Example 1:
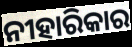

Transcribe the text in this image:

ନୀହାରିକାର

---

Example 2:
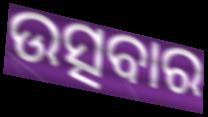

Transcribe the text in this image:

ଉତ୍ସବାର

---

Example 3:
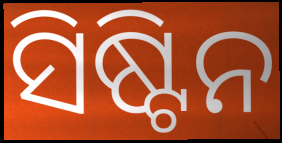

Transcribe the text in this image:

ସିଷ୍ଟିନ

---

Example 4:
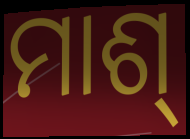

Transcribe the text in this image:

ମାଶ୍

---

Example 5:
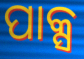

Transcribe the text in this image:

ପାକ୍ସ